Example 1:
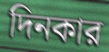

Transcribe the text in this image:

দিনকার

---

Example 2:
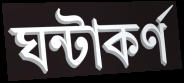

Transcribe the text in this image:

ঘন্টাকর্ণ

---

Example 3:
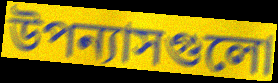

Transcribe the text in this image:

উপন্যাসগুলো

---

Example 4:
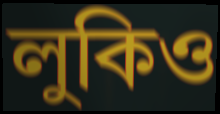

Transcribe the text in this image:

লুকিও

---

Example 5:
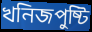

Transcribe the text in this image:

খনিজপুষ্টি